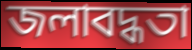
জলাবদ্ধতা